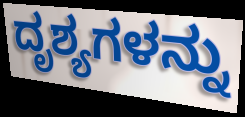
ದೃಶ್ಯಗಳನ್ನು